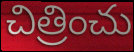
చిత్రించు